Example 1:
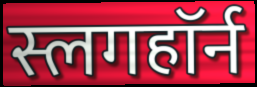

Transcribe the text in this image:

स्लगहॉर्न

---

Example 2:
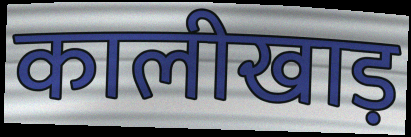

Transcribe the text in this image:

कालीखाड़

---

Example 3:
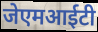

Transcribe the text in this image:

जेएमआईटी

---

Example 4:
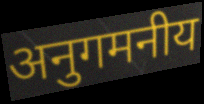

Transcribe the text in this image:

अनुगमनीय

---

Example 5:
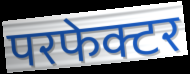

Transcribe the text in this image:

परफेक्टर